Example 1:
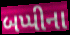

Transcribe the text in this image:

બપ્પીના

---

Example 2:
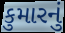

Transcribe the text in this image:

કુમારનું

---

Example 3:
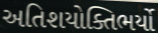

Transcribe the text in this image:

અતિશયોક્તિભર્યો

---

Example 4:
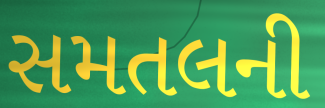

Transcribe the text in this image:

સમતલની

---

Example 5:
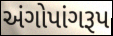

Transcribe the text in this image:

અંગોપાંગરૂપ